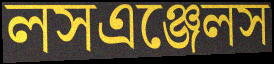
লসএঞ্জেলস